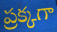
ప్రక్కగా